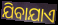
ଯିବାଯାଏ